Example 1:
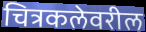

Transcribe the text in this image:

चित्रकलेवरील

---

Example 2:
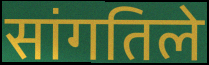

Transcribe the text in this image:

सांगतिले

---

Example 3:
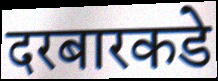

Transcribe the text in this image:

दरबारकडे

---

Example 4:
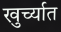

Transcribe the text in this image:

खुर्च्यात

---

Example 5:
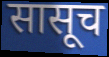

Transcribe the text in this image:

सासूच